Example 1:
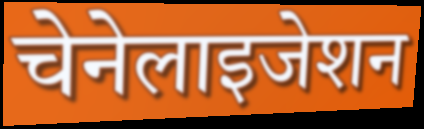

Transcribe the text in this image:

चेनेलाइजेशन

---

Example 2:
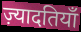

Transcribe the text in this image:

ज़्यादतियाँ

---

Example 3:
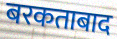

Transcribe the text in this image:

बरकताबाद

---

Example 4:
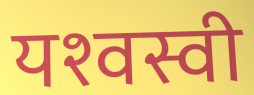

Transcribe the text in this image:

यश्वस्वी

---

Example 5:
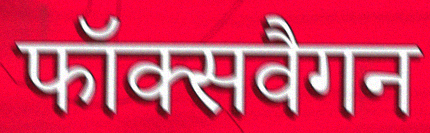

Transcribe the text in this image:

फॉक्सवैगन